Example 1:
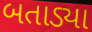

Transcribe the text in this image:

બતાડ્યા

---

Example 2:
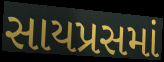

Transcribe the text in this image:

સાયપ્રસમાં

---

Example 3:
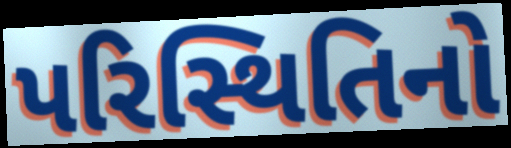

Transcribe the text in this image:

પરિસ્થિતિનો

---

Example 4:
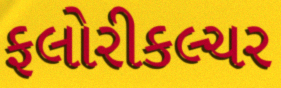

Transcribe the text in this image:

ફલોરીકલ્ચર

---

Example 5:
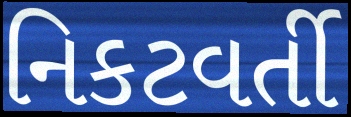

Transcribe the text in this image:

નિકટવર્તી